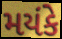
મયંકે